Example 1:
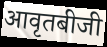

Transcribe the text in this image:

आवृतबीजी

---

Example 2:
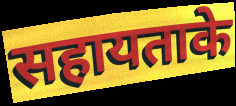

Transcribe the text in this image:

सहायताके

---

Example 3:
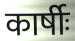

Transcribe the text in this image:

कार्षीः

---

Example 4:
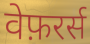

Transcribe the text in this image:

वेफ़रर्स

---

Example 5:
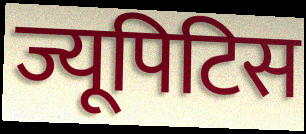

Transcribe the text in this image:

ज्यूपिटिस